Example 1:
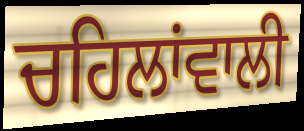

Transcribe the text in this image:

ਚਹਿਲਾਂਵਾਲੀ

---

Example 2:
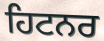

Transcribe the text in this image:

ਹਿਟਨਰ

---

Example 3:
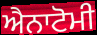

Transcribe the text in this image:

ਐਨਾਟੋਮੀ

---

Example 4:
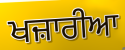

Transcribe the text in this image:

ਖਜ਼ਾਰੀਆ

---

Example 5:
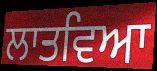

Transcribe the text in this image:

ਲਾਤਵਿਆ